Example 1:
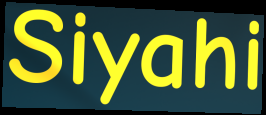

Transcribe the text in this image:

Siyahi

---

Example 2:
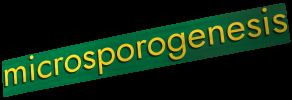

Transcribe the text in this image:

microsporogenesis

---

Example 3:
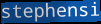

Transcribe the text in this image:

stephensi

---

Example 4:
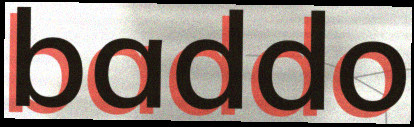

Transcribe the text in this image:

baddo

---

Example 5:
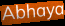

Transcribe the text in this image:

Abhaya